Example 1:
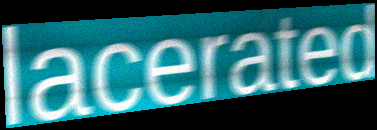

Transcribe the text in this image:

lacerated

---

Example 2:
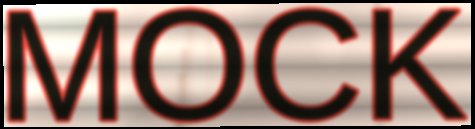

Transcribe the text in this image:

MOCK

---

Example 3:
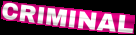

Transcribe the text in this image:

CRIMINAL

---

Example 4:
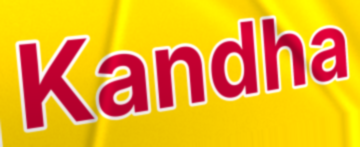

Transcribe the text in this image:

Kandha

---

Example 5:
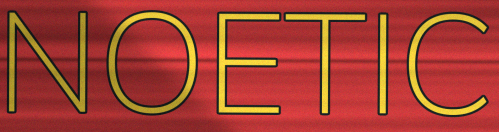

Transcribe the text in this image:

NOETIC